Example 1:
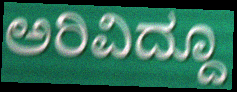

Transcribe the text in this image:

ಅರಿವಿದ್ದೂ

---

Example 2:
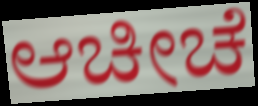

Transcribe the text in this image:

ಆಚೀಚೆ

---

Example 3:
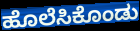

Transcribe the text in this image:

ಹೊಲೆಸಿಕೊಂಡು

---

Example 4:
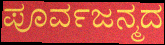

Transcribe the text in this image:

ಪೂರ್ವಜನ್ಮದ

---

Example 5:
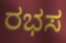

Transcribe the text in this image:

ರಭಸ